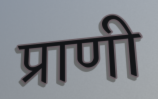
प्राणी